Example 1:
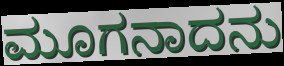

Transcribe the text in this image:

ಮೂಗನಾದನು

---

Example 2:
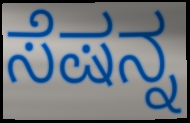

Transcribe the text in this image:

ಸೆಷನ್ನ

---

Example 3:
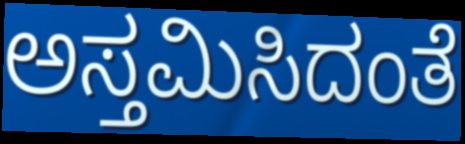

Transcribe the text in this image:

ಅಸ್ತಮಿಸಿದಂತೆ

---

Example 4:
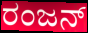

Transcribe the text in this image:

ರಂಜನ್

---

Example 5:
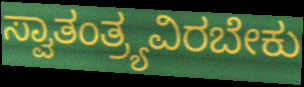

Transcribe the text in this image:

ಸ್ವಾತಂತ್ರ್ಯವಿರಬೇಕು